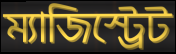
ম্যাজিস্ট্রেট